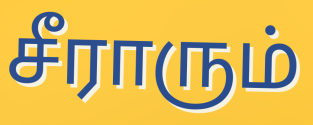
சீராரும்